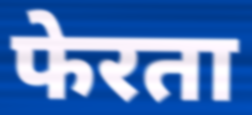
फेरता